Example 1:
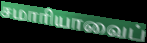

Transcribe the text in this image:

சமாரியாவைப்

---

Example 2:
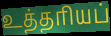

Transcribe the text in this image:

உத்தரியப்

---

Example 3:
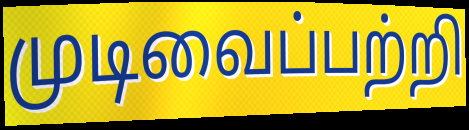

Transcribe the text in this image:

முடிவைப்பற்றி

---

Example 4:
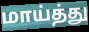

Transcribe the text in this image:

மாய்த்து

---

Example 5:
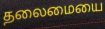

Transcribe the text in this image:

தலைமையை